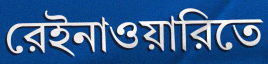
রেইনাওয়ারিতে